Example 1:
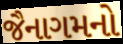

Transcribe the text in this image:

જૈનાગમનો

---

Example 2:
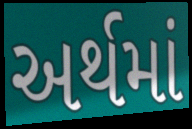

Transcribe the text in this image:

અર્થમાં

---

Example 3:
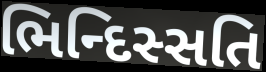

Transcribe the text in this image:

ભિન્દિસ્સતિ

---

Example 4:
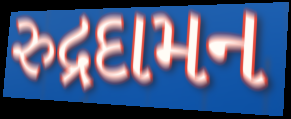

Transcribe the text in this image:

રુદ્રદામન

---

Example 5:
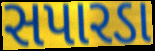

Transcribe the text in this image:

સપારડા